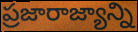
ప్రజారాజ్యాన్ని